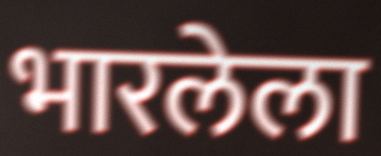
भारलेला